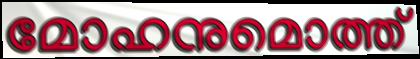
മോഹനുമൊത്ത്